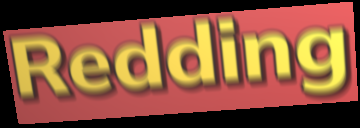
Redding